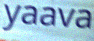
yaava